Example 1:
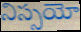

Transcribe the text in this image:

నిస్సయో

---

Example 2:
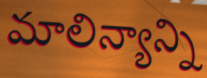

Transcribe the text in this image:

మాలిన్యాన్ని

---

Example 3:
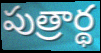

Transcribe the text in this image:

పుత్రార్థ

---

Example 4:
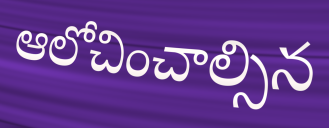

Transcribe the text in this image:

ఆలోచించాల్సిన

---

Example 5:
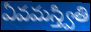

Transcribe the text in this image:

ఏవమస్త్వితి